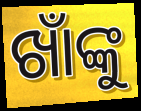
ଖାଁଙ୍କୁ